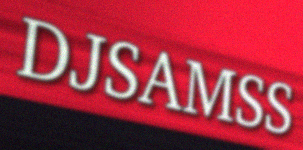
DJSAMSS